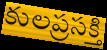
కులప్రసక్తి